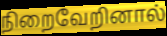
நிறைவேறினால்